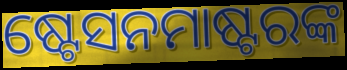
ଷ୍ଟେସନମାଷ୍ଟରଙ୍କ